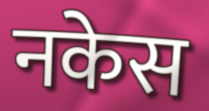
नकेस